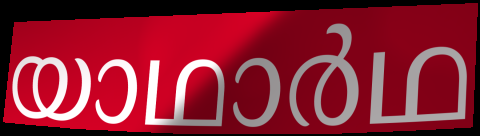
യാഥാർഥ